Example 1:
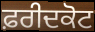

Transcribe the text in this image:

ਫ਼ਰੀਦਕੋਟ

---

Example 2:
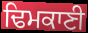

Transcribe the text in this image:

ਢਿਮਕਾਣੀ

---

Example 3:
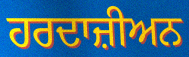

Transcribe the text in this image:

ਹਰਦਾਜ਼ੀਅਨ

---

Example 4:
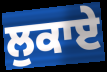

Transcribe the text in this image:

ਲੁਕਾਏ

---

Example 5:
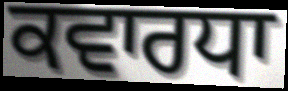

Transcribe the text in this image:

ਕਵਾਰਧਾ